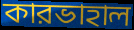
কারভাহাল